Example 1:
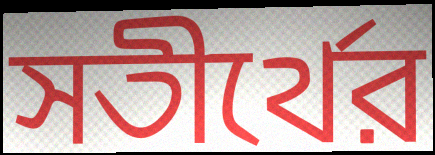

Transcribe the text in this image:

সতীর্থের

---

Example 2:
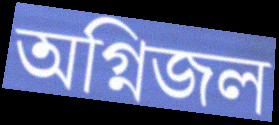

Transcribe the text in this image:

অগ্নিজল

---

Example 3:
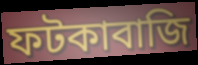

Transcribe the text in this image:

ফটকাবাজি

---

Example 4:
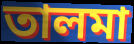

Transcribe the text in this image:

তালমা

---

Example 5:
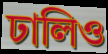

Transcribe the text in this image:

ঢালিও